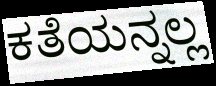
ಕತೆಯನ್ನಲ್ಲ